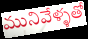
మునివేళ్ళతో